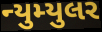
ન્યુમ્યુલર